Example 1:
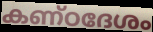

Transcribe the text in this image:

കണ്ഠദേശം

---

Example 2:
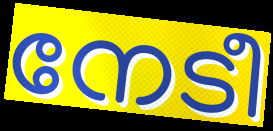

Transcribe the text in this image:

നേടീ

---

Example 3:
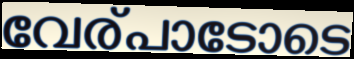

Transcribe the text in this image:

വേര്പാടോടെ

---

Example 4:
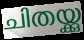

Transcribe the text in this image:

ചിതയ്ക്കു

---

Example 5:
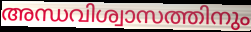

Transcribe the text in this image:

അന്ധവിശ്വാസത്തിനും